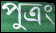
পুত্রং